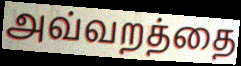
அவ்வறத்தை